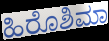
ಹಿರೊಶಿಮಾ